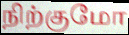
நிற்குமோ